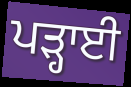
ਪੜ੍ਹਾਈ